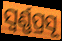
ସ୍ଵର୍ଣ୍ଣପ୍ରସୂ